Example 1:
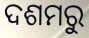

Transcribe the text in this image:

ଦଶମରୁ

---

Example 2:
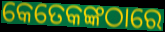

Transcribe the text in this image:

କେତେକଙ୍କଠାରେ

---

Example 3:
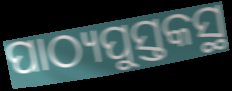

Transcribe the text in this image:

ପାଠ୍ୟପୁସ୍ତକସ୍ଥ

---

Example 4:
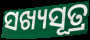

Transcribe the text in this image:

ସଖ୍ୟସୂତ୍ର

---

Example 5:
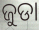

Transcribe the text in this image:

ଜୁଡା